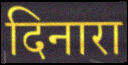
दिनारा